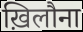
ख़िलौना